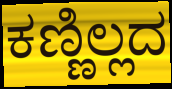
ಕಣ್ಣಿಲ್ಲದ